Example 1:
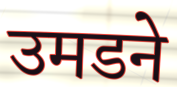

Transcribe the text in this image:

उमडने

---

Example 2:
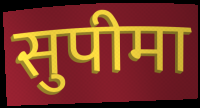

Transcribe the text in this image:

सुपीमा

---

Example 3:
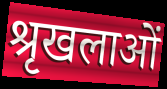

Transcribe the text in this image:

श्रृखलाओं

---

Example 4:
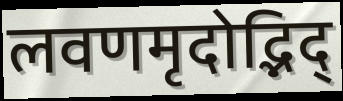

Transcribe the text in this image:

लवणमृदोद्भिद्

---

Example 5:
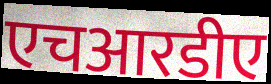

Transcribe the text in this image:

एचआरडीए